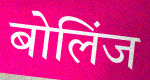
बोलिंज